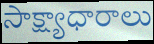
సాక్ష్యాధారాలు